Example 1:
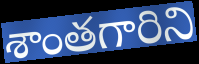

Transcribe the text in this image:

శాంతగారిని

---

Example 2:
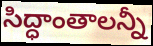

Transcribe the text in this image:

సిద్ధాంతాలన్నీ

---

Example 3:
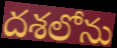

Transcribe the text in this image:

దశలోను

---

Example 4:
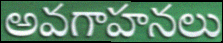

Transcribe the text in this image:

అవగాహనలు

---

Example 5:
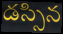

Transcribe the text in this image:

డస్సిన